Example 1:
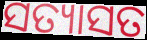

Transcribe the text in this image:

ସତ୍ୟାସତ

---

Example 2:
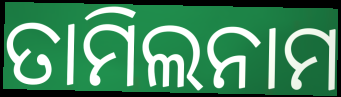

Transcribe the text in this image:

ତାମିଲନାମ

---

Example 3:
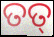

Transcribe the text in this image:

ତତ୍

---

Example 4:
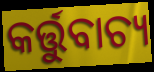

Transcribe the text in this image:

କର୍ତ୍ତୁବାଚ୍ୟ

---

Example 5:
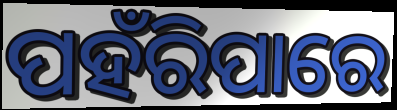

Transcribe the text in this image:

ପହଁରିପାରେ